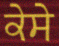
ਕੇਸੇ